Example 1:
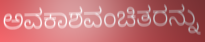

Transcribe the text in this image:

ಅವಕಾಶವಂಚಿತರನ್ನು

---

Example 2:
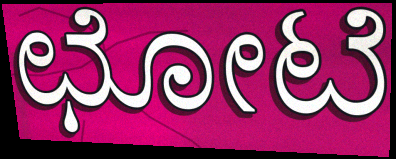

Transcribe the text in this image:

ಛೋಟೆ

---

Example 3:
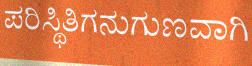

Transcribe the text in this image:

ಪರಿಸ್ಥಿತಿಗನುಗುಣವಾಗಿ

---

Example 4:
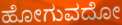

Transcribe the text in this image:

ಹೋಗುವದೋ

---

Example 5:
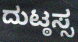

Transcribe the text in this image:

ದುಟ್ಠಸ್ಸ